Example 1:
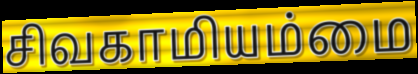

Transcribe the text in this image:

சிவகாமியம்மை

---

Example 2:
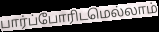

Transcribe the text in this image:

பார்ப்போரிடமெல்லாம்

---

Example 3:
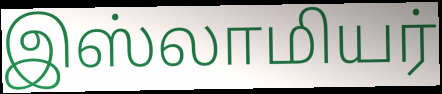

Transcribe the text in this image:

இஸ்லாமியர்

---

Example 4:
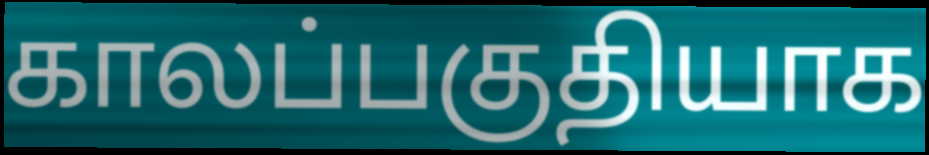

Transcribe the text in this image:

காலப்பகுதியாக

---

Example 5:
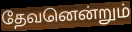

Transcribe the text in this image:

தேவனென்றும்